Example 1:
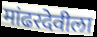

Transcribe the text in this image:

मांढरदेवीला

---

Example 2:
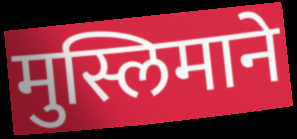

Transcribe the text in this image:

मुस्लिमाने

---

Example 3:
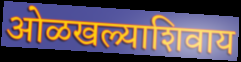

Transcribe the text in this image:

ओळखल्याशिवाय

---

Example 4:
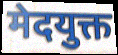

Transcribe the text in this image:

मेदयुक्त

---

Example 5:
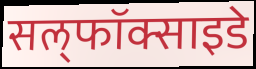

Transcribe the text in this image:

सल्फॉक्साइडे